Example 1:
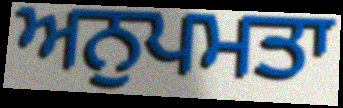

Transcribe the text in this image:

ਅਨੁਪਮਤਾ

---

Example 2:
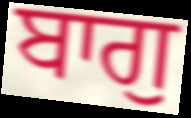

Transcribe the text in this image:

ਬਾਗੁ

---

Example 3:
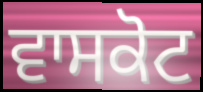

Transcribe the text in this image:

ਵਾਸਕੋਟ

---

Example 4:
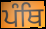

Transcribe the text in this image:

ਪੰਥਿ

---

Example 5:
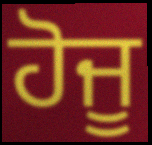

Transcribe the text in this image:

ਹੋਜੂ